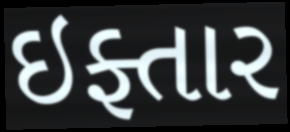
ઇફ્તાર